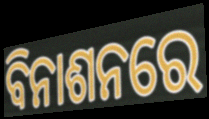
ବିନାଶନରେ